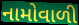
નામોવાળી